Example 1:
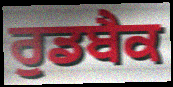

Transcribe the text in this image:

ਰੁਡਬੈਕ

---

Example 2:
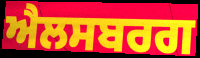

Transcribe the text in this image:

ਐਲਸਬਰਗ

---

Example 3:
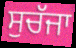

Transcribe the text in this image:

ਸੁਚੱਜਾ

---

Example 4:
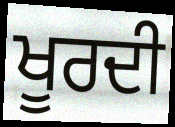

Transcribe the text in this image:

ਖੂਰਦੀ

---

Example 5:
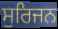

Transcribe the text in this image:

ਸੁਰਿਜਨ